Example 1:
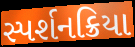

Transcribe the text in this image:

સ્પર્શનક્રિયા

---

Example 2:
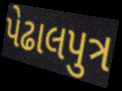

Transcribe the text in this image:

પેઢાલપુત્ર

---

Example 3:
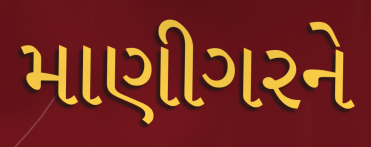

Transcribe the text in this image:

માણીગરને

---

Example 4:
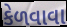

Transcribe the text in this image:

કેળવાવા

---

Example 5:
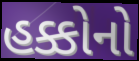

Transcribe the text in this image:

હક્કોનો